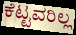
ಕೆಟ್ಟವರಿಲ್ಲ